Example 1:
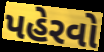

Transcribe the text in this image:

પહેરવો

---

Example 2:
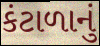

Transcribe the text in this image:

કંટાળાનું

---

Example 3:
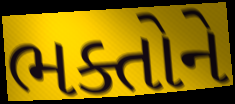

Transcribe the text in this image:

ભક્તોને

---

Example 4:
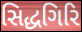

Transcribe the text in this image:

સિદ્ધગિરિ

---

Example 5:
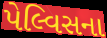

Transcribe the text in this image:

પેલ્વિસના